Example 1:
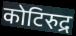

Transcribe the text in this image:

कोटिरुद्र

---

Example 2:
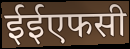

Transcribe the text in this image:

ईईएफसी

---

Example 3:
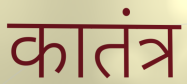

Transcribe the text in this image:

कातंत्र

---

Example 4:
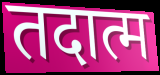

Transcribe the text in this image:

तदात्म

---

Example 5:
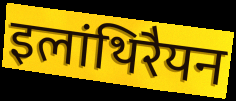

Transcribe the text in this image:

इलांथिरैयन